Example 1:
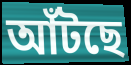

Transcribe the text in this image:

আঁটছে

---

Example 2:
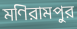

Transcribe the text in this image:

মণিরামপুর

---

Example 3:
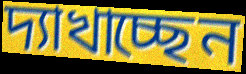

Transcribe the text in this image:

দ্যাখাচ্ছেন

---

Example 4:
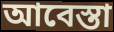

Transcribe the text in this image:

আবেস্তা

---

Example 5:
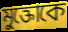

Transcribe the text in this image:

মুক্তোকে